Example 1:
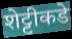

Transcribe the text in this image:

शेट्टीकडे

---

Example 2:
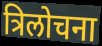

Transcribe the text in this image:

त्रिलोचना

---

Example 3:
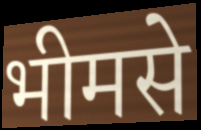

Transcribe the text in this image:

भीमसे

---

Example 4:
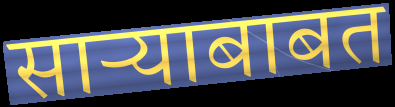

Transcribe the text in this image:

साऱ्याबाबत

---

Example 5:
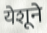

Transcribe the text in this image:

येशूने